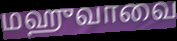
மஹுவாவை